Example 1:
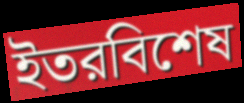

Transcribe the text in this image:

ইতরবিশেষ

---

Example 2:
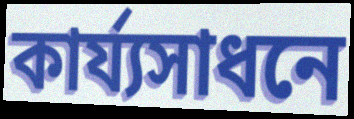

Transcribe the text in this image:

কার্য্যসাধনে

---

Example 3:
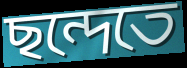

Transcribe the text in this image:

ছন্দেতে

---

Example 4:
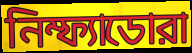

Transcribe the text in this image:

নিম্ফ্যাডোরা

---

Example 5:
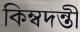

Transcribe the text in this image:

কিম্বদন্তী